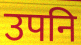
उपनि